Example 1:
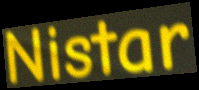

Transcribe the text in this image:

Nistar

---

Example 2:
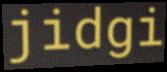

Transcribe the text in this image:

jidgi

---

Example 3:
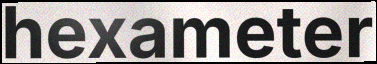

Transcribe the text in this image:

hexameter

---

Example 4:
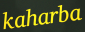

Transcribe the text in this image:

kaharba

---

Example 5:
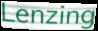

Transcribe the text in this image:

Lenzing